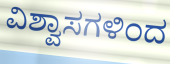
ವಿಶ್ವಾಸಗಳಿಂದ